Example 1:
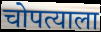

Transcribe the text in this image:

चोपत्याला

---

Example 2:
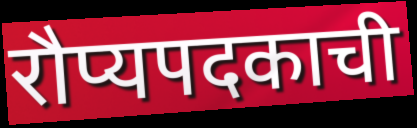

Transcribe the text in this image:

रौप्यपदकाची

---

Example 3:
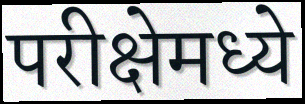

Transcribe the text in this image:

परीक्षेमध्ये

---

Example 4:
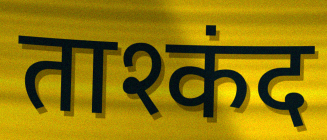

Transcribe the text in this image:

ताश्कंद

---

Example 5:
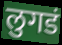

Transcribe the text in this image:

लुगडं